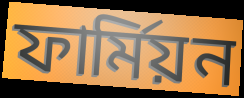
ফাৰ্মিয়ন